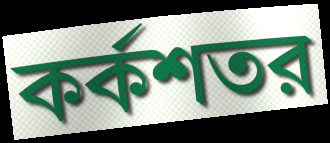
কর্কশতর